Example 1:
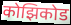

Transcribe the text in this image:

कोझिकोड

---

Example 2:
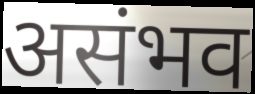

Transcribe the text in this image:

असंभव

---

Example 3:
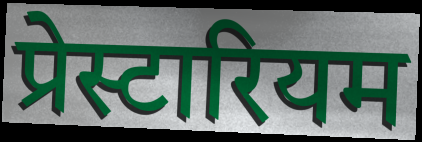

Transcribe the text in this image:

प्रेस्टारियम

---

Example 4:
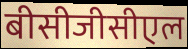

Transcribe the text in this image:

बीसीजीसीएल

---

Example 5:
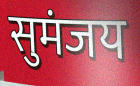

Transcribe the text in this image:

सुमंजय